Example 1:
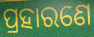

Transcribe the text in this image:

ପ୍ରହାରଣେ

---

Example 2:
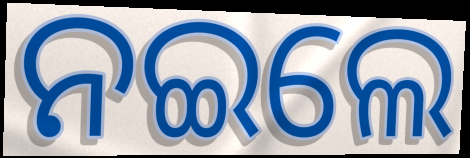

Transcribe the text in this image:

ନଇଲେ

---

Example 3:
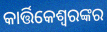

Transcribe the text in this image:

କାର୍ତ୍ତିକେଶ୍ୱରଙ୍କର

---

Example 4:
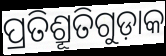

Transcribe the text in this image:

ପ୍ରତିଶ୍ରୂତିଗୁଡ଼ାକ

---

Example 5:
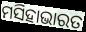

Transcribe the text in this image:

ମସିହାଭାରତ